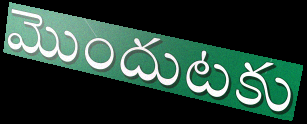
మొందుటకు